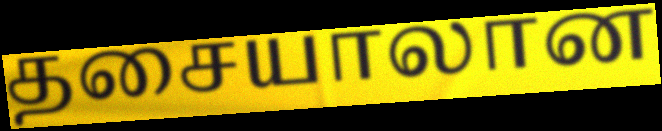
தசையாலான